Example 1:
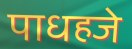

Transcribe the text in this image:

पाधहजे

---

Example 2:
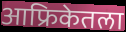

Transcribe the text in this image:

आफ्रिकेतला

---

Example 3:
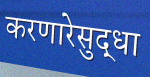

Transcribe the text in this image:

करणारेसुद्धा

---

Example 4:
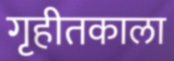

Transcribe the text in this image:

गृहीतकाला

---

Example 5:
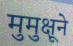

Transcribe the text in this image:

मुमुक्षूने